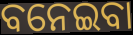
ବନେଇବା